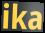
ika